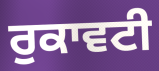
ਰੁਕਾਵਟੀ